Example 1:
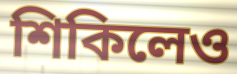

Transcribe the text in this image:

শিকিলেও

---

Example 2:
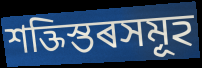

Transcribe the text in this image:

শক্তিস্তৰসমূহ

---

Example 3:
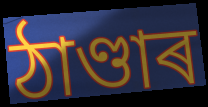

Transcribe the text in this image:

ঠাণ্ডাৰ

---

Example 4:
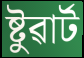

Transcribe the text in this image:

ষ্টুৱাৰ্ট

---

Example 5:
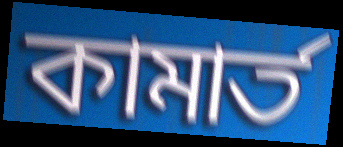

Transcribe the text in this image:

কামাৰ্ত